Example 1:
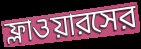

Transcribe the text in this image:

ফ্লাওয়ারসের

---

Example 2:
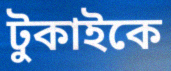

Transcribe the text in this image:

টুকাইকে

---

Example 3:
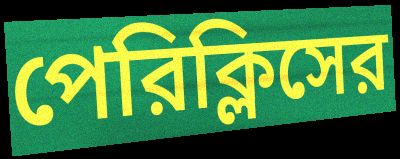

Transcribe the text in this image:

পেরিক্লিসের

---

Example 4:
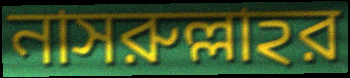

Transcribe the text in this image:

নাসরুল্লাহর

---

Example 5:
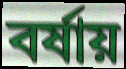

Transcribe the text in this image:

বর্ষায়